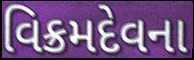
વિક્રમદેવના